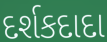
દર્શકદાદા